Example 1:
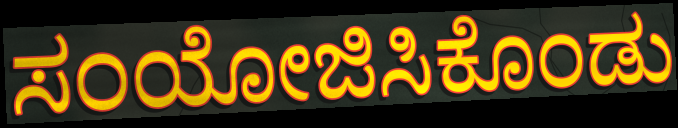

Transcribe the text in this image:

ಸಂಯೋಜಿಸಿಕೊಂಡು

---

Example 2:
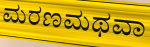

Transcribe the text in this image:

ಮರಣಮಥವಾ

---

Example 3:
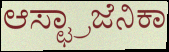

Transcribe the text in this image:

ಆಸ್ಟ್ರಾಜೆನಿಕಾ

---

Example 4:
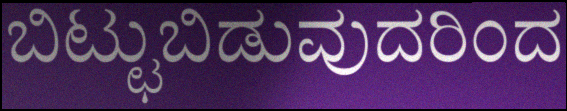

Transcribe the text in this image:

ಬಿಟ್ಟುಬಿಡುವುದರಿಂದ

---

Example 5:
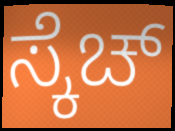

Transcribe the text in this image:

ಸ್ಕೆಚ್